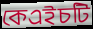
কেএইচটি